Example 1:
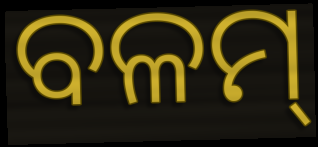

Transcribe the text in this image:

ବଳମ୍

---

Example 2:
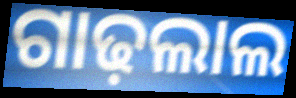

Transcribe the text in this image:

ଗାଢ଼ଲାଲ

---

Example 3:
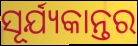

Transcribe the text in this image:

ସୂର୍ଯ୍ୟକାନ୍ତର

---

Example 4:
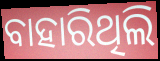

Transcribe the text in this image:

ବାହାରିଥିଲି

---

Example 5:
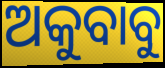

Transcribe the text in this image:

ଅକୁବାବୁ